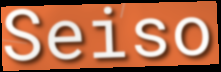
Seiso